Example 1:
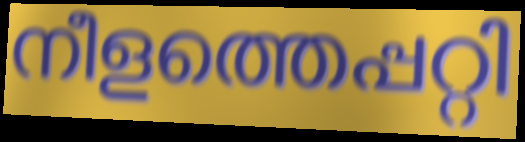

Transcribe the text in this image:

നീളത്തെപ്പറ്റി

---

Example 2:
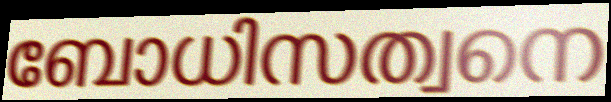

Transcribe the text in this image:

ബോധിസത്വനെ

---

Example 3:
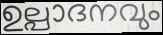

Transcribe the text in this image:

ഉല്പാദനവും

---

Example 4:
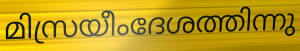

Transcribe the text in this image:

മിസ്രയീംദേശത്തിന്നു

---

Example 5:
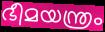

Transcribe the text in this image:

ഭീമയന്ത്രം